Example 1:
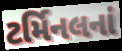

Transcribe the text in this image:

ટર્મિનલનાં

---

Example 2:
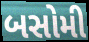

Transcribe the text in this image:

બસોમી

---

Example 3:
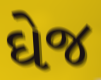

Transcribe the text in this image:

ઘેજ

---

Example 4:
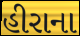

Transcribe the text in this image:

હીરાના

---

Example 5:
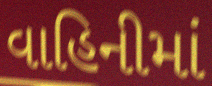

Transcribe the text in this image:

વાહિનીમાં